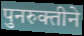
पुनरुक्तीने